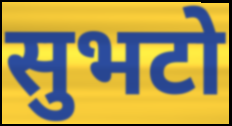
सुभटो